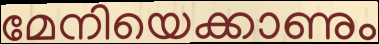
മേനിയെക്കാണും